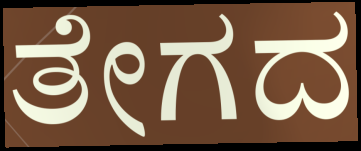
ತೇಗದ